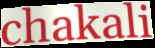
chakali